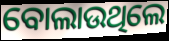
ବୋଲାଉଥିଲେ